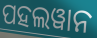
ପହଲୱାନ